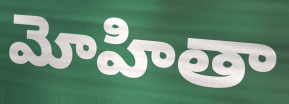
మోహితా